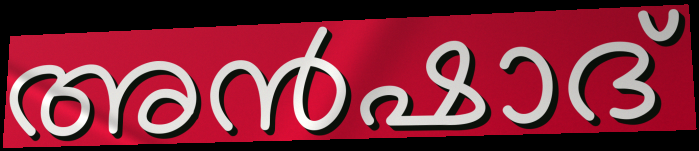
അൻഷാദ്